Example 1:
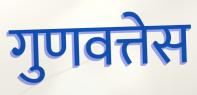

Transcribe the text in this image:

गुणवत्तेस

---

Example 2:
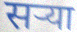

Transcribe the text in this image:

सऱ्या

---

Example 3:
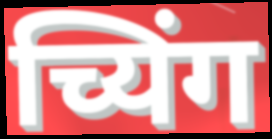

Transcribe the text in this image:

च्यिंग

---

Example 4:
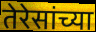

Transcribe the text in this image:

तेरेसांच्या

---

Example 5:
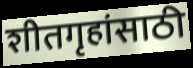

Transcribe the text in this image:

शीतगृहांसाठी